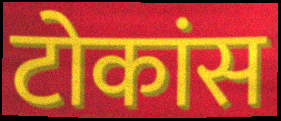
टोकांस